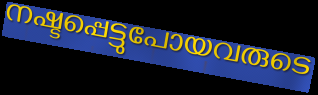
നഷ്ടപ്പെട്ടുപോയവരുടെ